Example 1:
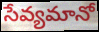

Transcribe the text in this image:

సేవ్యమానో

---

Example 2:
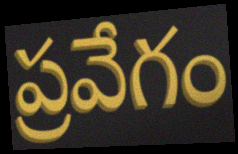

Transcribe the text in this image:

ప్రవేగం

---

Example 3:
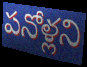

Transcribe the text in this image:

పనోళ్లని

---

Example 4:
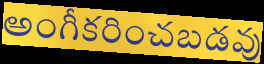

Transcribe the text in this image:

అంగీకరించబడవు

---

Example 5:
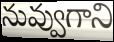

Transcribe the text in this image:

నువ్వుగాని